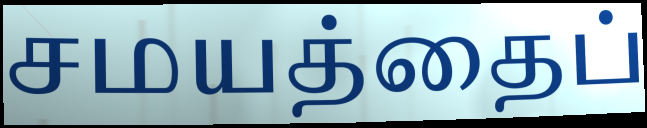
சமயத்தைப்